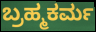
ಬ್ರಹ್ಮಕರ್ಮ